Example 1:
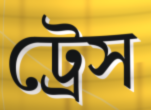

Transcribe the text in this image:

ট্রেস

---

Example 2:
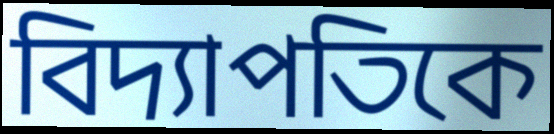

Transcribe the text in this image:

বিদ্যাপতিকে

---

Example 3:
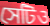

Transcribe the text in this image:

সেটিও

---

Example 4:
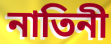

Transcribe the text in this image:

নাতিনী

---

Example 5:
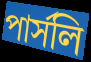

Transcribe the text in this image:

পার্সলি